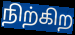
நிற்கிற